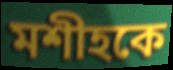
মশীহকে